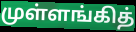
முள்ளங்கித்